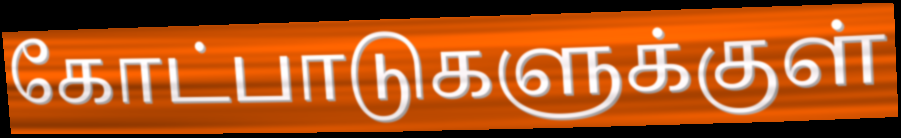
கோட்பாடுகளுக்குள்